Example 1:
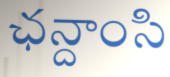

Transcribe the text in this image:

ఛన్దాంసి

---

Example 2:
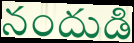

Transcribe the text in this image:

నందుడి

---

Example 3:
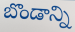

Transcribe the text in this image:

బొండాన్ని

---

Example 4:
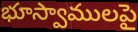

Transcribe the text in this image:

భూస్వాములపై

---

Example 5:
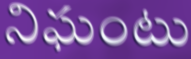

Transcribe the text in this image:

నిఘంటు